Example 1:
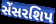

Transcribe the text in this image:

સેંસરશિપ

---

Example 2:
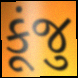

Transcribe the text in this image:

કૂંજુ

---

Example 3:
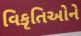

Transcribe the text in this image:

વિકૃતિઓને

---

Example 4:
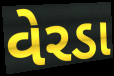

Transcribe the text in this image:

વેરડા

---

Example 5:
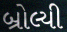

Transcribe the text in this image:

બ્રોલ્યી